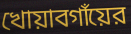
খোয়াবগাঁয়ের